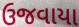
ઉજવાયા